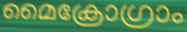
മൈക്രോഗ്രാം